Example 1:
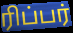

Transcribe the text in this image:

ரிப்பர்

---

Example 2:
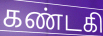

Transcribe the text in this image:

கண்டகி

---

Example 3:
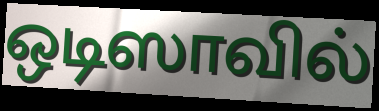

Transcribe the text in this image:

ஒடிஸாவில்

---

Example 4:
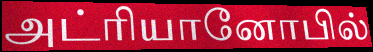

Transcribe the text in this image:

அட்ரியானோபில்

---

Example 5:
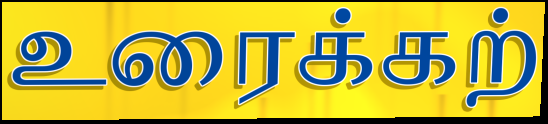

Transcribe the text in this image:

உரைக்கற்